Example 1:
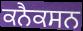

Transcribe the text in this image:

ਕਨੈਕਸਨ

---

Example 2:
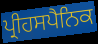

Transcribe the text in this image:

ਪ੍ਰੀਹਸਪੈਨਿਕ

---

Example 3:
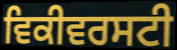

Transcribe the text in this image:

ਵਿਕੀਵਰਸਟੀ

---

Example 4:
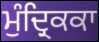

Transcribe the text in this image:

ਮੁੰਦ੍ਰਿਕਕਾ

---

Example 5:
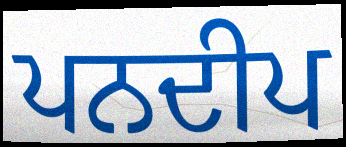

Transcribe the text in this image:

ਪਨਦੀਪ